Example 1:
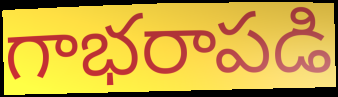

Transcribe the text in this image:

గాభరాపడి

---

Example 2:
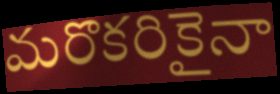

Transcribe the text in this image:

మరొకరికైనా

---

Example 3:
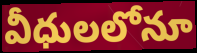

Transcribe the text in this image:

వీధులలోనూ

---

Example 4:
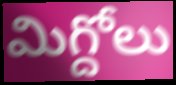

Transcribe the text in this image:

మిగ్దోలు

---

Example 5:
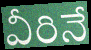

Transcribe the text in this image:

వీరినే